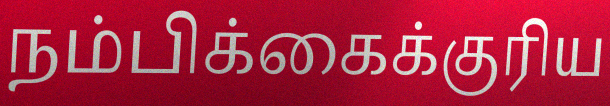
நம்பிக்கைக்குரிய